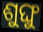
ଶୁଙ୍ଘୁ